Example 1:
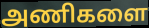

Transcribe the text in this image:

அணிகளை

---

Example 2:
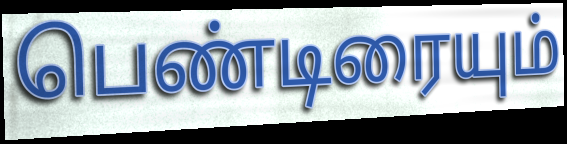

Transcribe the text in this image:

பெண்டிரையும்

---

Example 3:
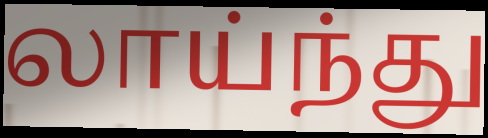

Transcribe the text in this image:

லாய்ந்து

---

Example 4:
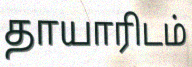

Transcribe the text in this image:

தாயாரிடம்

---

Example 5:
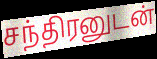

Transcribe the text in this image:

சந்திரனுடன்